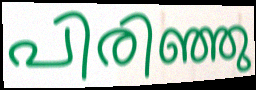
പിരിഞ്ഞു